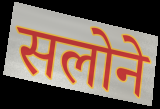
सलोने